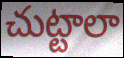
చుట్టాలా